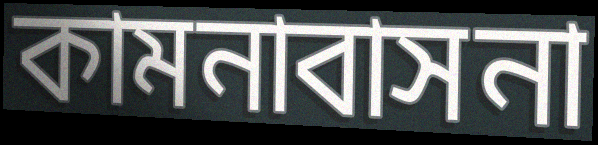
কামনাবাসনা